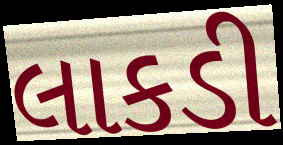
લાકડી